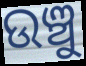
ଉଞ୍ଚୁ